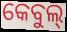
କେବୁଲ୍